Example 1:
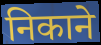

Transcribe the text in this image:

निकाने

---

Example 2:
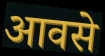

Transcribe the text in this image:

आवसे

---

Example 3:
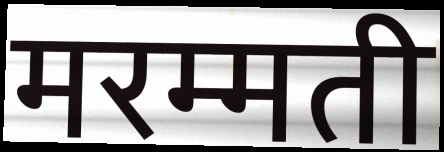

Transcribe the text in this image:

मरम्मती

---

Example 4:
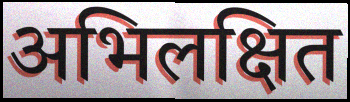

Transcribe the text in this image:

अभिलक्षित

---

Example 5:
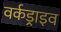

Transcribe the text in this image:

वर्कड्राइव